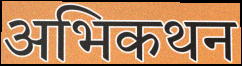
अभिकथन